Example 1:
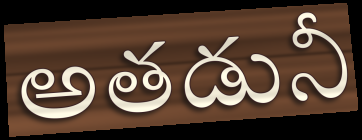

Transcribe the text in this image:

అతడునీ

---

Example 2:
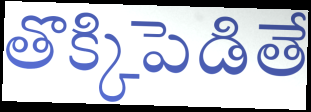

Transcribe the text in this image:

తొక్కిపెడితే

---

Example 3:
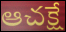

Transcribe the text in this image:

ఆచక్షే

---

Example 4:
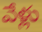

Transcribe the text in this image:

వేళ్లు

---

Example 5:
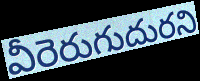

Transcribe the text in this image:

వీరెరుగుదురని